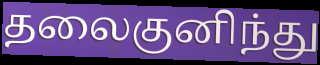
தலைகுனிந்து